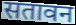
सतावन